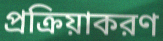
প্রক্রিয়াকরণ